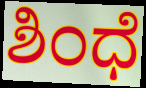
ಶಿಂಧೆ